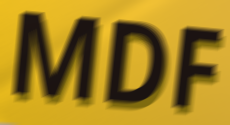
MDF